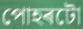
পোহৰটো